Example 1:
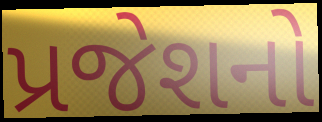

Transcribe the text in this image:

પ્રજેશનો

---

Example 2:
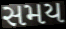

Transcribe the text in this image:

સમય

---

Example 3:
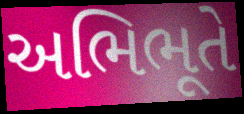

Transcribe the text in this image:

અભિભૂતે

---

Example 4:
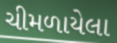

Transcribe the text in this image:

ચીમળાયેલા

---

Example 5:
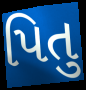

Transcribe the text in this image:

પિતુ